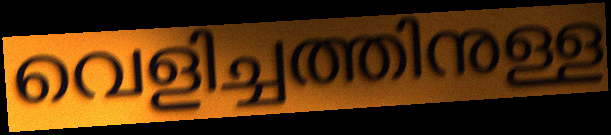
വെളിച്ചത്തിനുള്ള